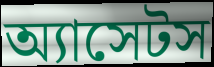
অ্যাসেটস